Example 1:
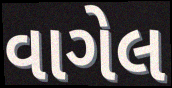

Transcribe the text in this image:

વાગેલ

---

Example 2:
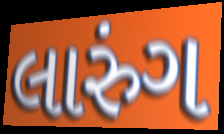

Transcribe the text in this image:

લારુંગ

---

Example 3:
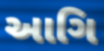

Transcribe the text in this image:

આગિ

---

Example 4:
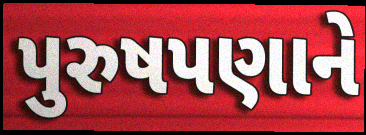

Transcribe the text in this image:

પુરુષપણાને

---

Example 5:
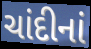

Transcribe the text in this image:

ચાંદીનાં